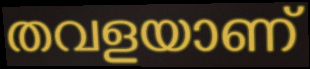
തവളയാണ്